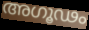
അഗൂഢം